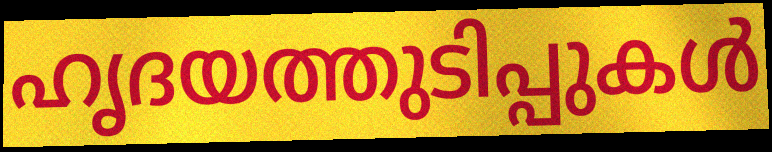
ഹൃദയത്തുടിപ്പുകൾ